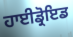
ਹਾਈਡ੍ਰੋਇਡ